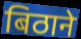
बिठाने